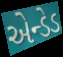
એન્ડેડ